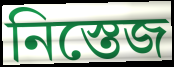
নিস্তেজ